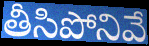
తీసిపోనివే